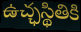
ఉచ్ఛస్థితికి